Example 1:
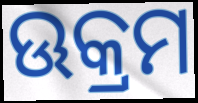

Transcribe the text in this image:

ଊକ୍ରମ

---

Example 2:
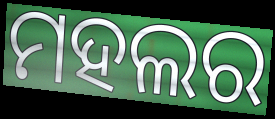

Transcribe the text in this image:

ମହଲର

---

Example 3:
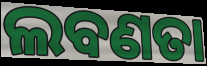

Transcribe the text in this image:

ଲବଣତା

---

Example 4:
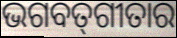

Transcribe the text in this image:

ଭଗବତ୍‍ଗୀତାର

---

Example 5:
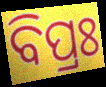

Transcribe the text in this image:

ବିପ୍ରଃ